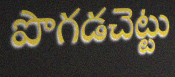
పొగడచెట్టు